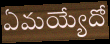
ఏమయ్యేదో